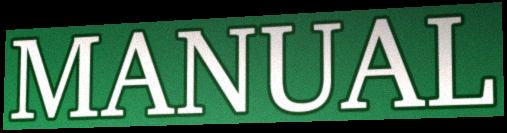
MANUAL